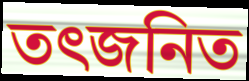
তৎজনিত